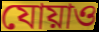
যোয়াও